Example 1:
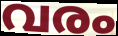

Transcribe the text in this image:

വരം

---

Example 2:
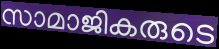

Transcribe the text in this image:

സാമാജികരുടെ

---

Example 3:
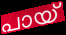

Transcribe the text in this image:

പായ്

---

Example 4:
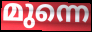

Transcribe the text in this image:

മുന്നെ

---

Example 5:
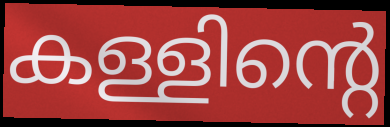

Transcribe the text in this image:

കള്ളിന്റെ